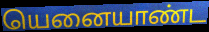
யெனையாண்ட